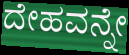
ದೇಹವನ್ನೇ